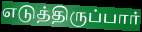
எடுத்திருப்பார்